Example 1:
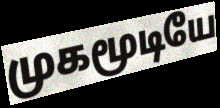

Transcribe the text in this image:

முகமூடியே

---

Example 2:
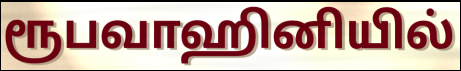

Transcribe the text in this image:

ரூபவாஹினியில்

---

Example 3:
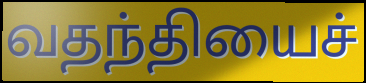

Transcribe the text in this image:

வதந்தியைச்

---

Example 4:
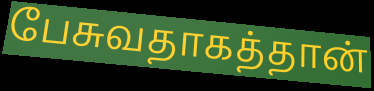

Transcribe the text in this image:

பேசுவதாகத்தான்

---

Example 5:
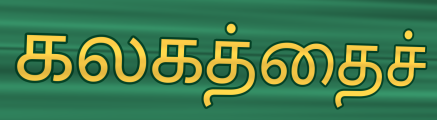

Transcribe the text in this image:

கலகத்தைச்